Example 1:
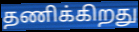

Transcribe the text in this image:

தணிக்கிறது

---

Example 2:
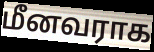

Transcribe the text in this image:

மீனவராக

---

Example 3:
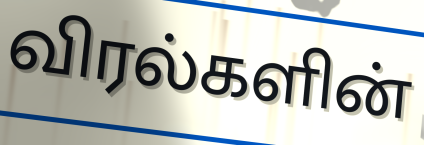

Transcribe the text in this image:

விரல்களின்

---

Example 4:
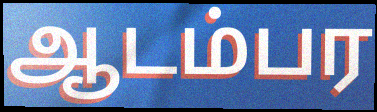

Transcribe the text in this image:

ஆடம்பர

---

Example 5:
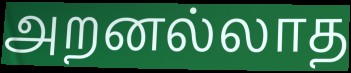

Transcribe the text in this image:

அறனல்லாத